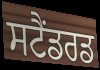
ਸਟੈਂਡਰਡ